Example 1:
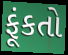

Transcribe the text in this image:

ફૂંકતો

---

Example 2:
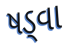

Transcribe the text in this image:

ષડ્વા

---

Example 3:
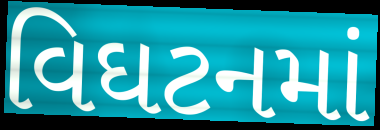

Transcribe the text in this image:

વિઘટનમાં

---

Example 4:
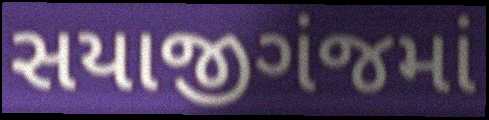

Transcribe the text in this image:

સયાજીગંજમાં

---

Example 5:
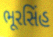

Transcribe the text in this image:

ભૂરસિંહ